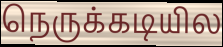
நெருக்கடியில